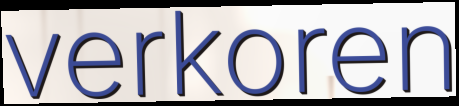
verkoren